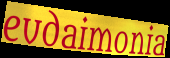
eudaimonia